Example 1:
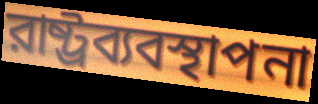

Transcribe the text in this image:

রাষ্ট্রব্যবস্থাপনা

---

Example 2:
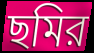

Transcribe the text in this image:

ছমির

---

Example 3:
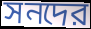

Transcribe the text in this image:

সনদের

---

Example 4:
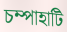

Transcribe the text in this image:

চম্পাহাটি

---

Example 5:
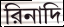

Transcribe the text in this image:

রিনাদি